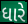
ધારે